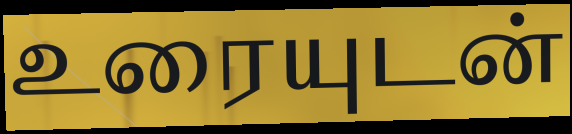
உரையுடன்